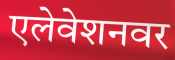
एलेवेशनवर